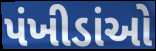
પંખીડાંઓ